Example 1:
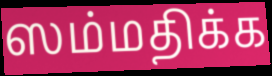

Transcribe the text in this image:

ஸம்மதிக்க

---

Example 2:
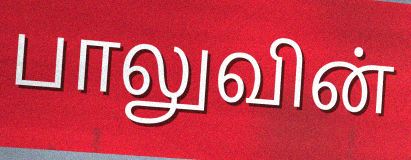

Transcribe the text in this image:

பாலுவின்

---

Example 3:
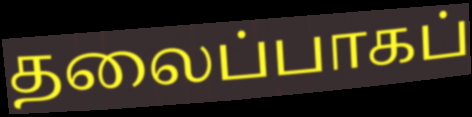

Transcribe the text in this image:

தலைப்பாகப்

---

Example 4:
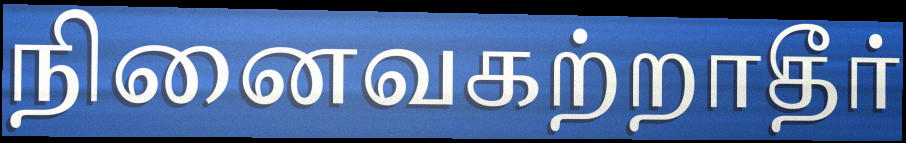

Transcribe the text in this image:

நினைவகற்றாதீர்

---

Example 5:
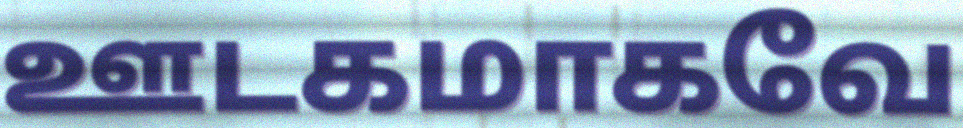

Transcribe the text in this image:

ஊடகமாகவே